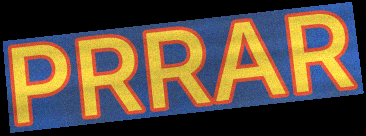
PRRAR